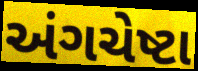
અંગચેષ્ટા